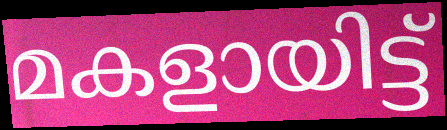
മകളായിട്ട്